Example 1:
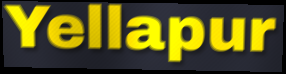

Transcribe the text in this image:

Yellapur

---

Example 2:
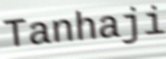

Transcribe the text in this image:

Tanhaji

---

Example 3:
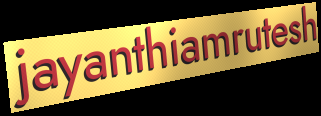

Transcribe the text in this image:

jayanthiamrutesh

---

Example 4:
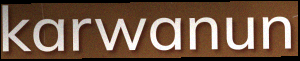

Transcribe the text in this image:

karwanun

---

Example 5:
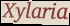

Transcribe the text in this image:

Xylaria